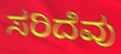
ಸರಿದೆವು